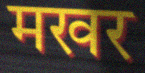
मखर